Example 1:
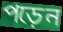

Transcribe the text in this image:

পড়েন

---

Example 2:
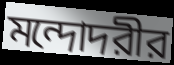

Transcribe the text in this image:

মন্দোদরীর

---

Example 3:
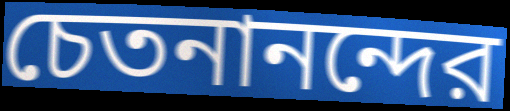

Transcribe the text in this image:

চেতনানন্দের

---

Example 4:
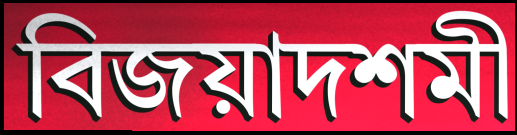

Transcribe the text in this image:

বিজয়াদশমী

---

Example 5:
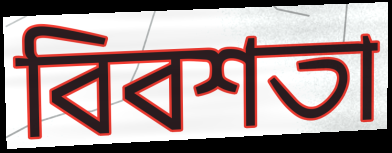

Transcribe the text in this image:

বিবশতা